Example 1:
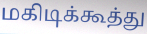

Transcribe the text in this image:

மகிடிக்கூத்து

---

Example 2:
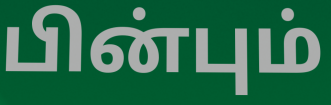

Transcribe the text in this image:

பின்பும்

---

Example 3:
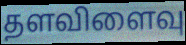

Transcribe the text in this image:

தளவிளைவு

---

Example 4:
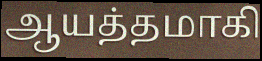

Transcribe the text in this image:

ஆயத்தமாகி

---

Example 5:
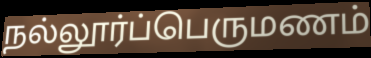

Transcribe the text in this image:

நல்லூர்ப்பெருமணம்